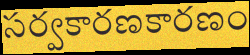
సర్వకారణకారణం